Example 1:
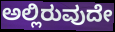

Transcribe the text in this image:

ಅಲ್ಲಿರುವುದೇ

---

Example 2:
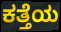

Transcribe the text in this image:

ಕತ್ತೆಯ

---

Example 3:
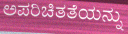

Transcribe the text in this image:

ಅಪರಿಚಿತತೆಯನ್ನು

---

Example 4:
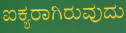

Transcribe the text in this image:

ಐಕ್ಯರಾಗಿರುವುದು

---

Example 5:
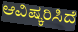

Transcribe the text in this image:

ಆವಿಷ್ಕರಿಸಿದೆ